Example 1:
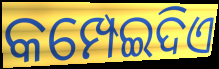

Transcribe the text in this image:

କମ୍ପେଇଦିଏ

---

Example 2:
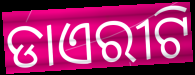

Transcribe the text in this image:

ଡାଏରୀଟି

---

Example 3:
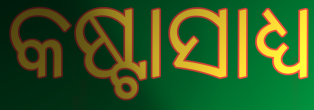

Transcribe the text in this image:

କଷ୍ଟାସାଧ୍ୟ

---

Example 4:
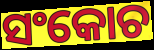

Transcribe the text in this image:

ସଂକୋଚ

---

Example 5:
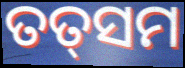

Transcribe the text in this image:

ତତ୍‌ସମ